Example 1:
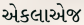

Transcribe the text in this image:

એકલાએજ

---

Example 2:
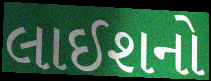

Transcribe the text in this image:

લાઈશનો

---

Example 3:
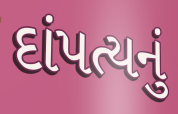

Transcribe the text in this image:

દાંપત્યનું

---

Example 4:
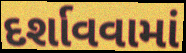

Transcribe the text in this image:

દર્શાવવામાં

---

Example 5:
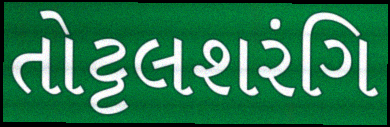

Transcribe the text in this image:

તોટ્ટલશરંગિ